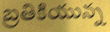
బ్రతికియున్న